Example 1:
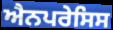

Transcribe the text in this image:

ਐਨਪਰੇਸਿਸ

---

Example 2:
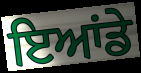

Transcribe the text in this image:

ਇਆਂਡੇ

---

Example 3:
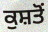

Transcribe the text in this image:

ਕੁਸ਼ਤੋਂ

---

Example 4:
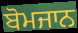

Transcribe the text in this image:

ਬੋਮਜਾਨ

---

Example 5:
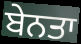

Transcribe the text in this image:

ਬੇਨਤਾ